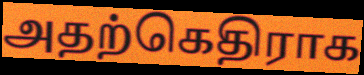
அதற்கெதிராக